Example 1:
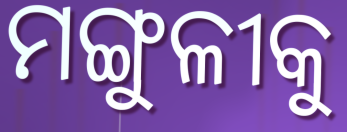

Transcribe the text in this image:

ମଙ୍ଗୁଳୀକୁ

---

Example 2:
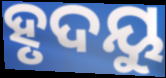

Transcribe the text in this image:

ହୃଦୟୁ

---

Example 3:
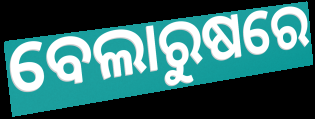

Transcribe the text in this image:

ବେଲାରୁଷରେ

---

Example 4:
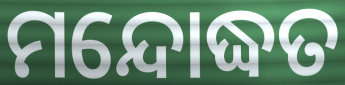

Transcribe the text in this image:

ମନ୍ଦୋଦ୍ଧତ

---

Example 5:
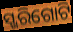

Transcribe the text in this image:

ସ୍ଖରିଗୋଟି